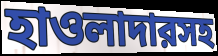
হাওলাদারসহ